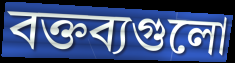
বক্তব্যগুলো